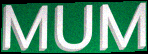
MUM